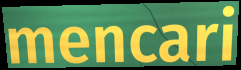
mencari